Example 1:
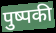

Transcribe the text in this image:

पुष्पकी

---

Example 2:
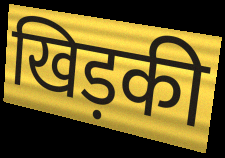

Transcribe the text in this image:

खिड़की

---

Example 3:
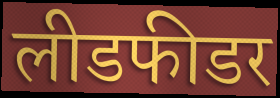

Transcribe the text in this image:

लीडफीडर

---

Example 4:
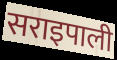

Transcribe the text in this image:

सराइपाली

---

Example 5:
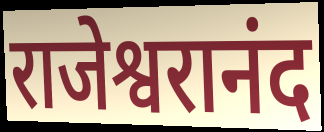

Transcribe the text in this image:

राजेश्वरानंद